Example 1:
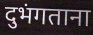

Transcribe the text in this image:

दुभंगताना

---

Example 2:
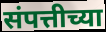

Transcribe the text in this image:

संपत्तीच्या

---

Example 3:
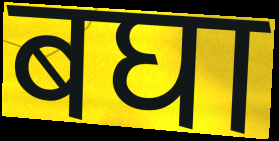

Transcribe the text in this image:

बघा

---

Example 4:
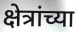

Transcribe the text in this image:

क्षेत्रांच्या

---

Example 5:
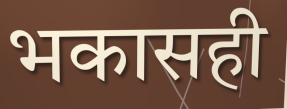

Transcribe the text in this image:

भकासही